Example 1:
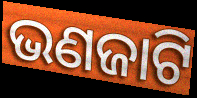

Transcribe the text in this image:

ଭଣଜାଟି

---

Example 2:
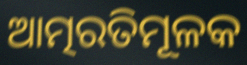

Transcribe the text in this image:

ଆତ୍ମରତିମୂଳକ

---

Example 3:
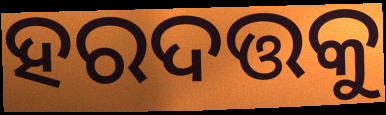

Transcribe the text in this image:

ହରଦତ୍ତକୁ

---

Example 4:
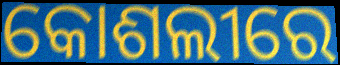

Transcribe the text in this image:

କୋଶଲୀରେ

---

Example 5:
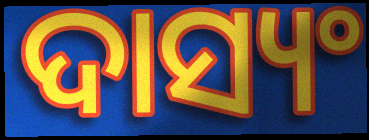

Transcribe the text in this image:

ଦାସ୍ୟଂ